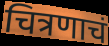
चित्रणाचं